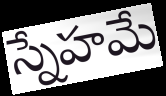
స్నేహమే